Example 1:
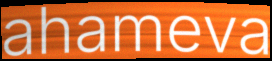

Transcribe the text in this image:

ahameva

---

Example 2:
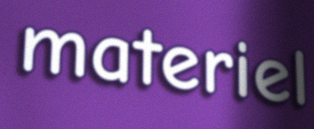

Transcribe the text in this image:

materiel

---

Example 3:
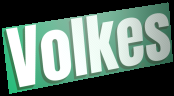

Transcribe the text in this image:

Volkes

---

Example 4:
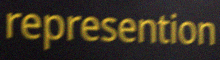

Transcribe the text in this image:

represention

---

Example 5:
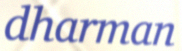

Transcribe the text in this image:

dharman